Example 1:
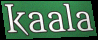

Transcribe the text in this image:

kaala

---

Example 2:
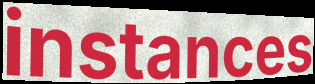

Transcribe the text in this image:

instances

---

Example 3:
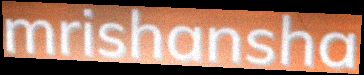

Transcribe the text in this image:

mrishansha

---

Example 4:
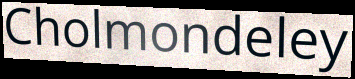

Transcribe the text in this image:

Cholmondeley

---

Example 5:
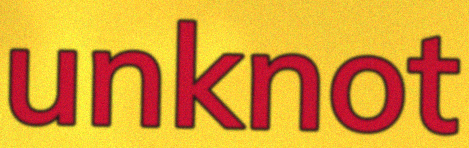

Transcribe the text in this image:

unknot